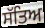
ਸੱਤਿਅ